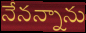
నేనన్నాను